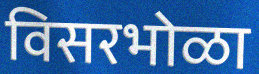
विसरभोळा